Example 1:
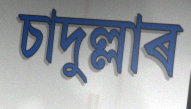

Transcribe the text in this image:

চাদুল্লাৰ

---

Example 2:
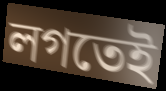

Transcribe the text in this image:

লগতেই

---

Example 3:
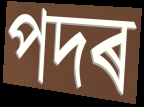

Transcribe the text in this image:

পদৰ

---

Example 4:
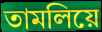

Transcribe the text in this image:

তামলিয়ে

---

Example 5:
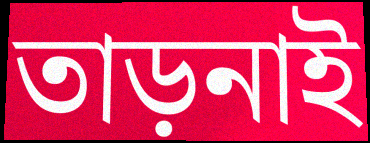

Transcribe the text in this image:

তাড়নাই